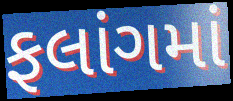
ફલાંગમાં